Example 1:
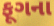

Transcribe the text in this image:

ફૂગના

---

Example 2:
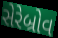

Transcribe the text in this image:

સેરેબ્રોવ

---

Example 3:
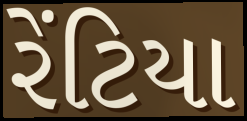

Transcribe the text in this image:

રેંટિયા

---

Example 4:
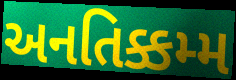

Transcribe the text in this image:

અનતિક્કમ્મ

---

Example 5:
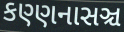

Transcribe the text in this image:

કણ્ણનાસઞ્ચ